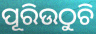
ପୂରିଉଠୁଚି